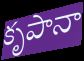
కృపానా